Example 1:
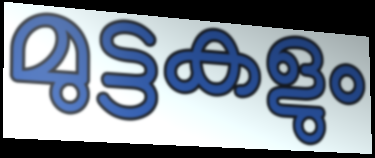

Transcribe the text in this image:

മുട്ടകളും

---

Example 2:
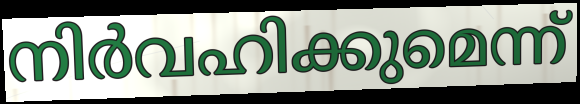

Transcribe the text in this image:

നിർവഹിക്കുമെന്ന്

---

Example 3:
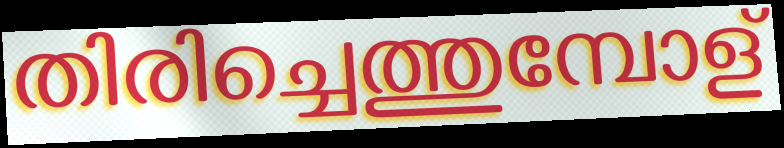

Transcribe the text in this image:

തിരിച്ചെത്തുമ്പോള്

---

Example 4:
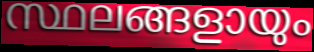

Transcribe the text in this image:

സ്ഥലങ്ങളായും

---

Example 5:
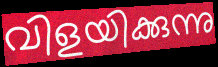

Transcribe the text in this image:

വിളയിക്കുന്നു